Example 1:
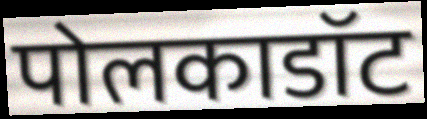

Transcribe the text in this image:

पोलकाडॉट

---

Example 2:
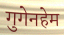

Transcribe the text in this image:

गुगेनहेम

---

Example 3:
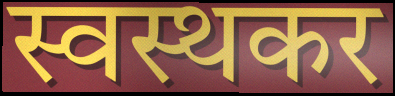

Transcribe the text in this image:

स्वस्थकर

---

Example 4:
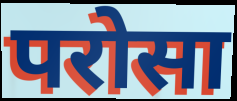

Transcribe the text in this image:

परोसा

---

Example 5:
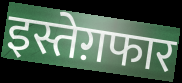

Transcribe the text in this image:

इस्तेग़फार